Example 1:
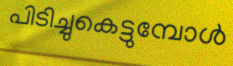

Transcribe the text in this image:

പിടിച്ചുകെട്ടുമ്പോൾ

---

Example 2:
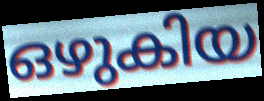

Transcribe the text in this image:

ഒഴുകിയ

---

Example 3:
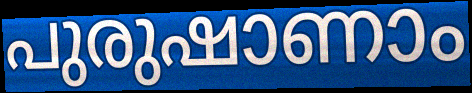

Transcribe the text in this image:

പുരുഷാണാം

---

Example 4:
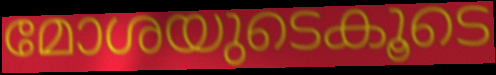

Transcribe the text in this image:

മോശയുടെകൂടെ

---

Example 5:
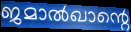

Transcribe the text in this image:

ജമാൽഖാന്റെ